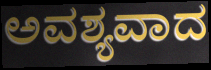
ಅವಶ್ಯವಾದ